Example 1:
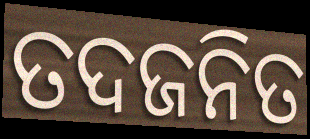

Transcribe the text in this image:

ତଦଜନିତ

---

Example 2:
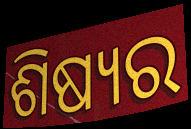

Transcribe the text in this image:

ଶିଷ୍ୟର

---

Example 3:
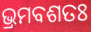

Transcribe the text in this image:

ଭ୍ରମବଶତଃ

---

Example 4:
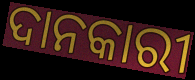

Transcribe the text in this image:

ଦାନକାରୀ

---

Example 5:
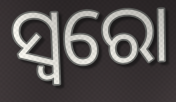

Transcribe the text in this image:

ସ୍ୱରୋ